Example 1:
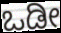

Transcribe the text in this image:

ಒಡೀ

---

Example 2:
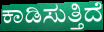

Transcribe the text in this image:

ಕಾಡಿಸುತ್ತಿದೆ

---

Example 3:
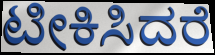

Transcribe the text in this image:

ಟೀಕಿಸಿದರೆ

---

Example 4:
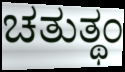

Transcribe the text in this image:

ಚತುತ್ಥಂ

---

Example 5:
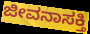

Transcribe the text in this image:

ಜೀವನಾಸಕ್ತಿ